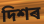
দিশৰ